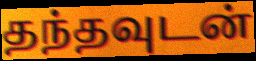
தந்தவுடன்